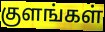
குளங்கள்